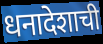
धनादेशाची